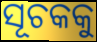
ସୂଚକକୁ